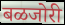
बळजोरी